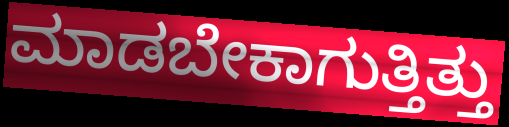
ಮಾಡಬೇಕಾಗುತ್ತಿತ್ತು